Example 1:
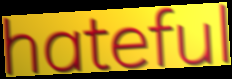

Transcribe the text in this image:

hateful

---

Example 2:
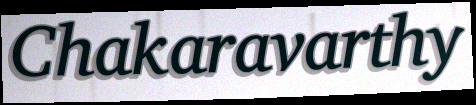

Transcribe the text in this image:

Chakaravarthy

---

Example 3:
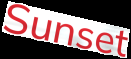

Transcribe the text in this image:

Sunset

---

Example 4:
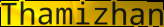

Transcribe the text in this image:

Thamizhan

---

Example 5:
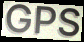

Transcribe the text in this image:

GPS